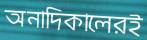
অনাদিকালেরই